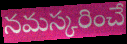
నమస్కరించే